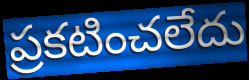
ప్రకటించలేదు